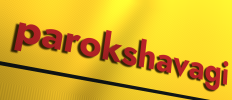
parokshavagi